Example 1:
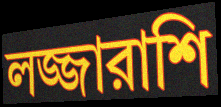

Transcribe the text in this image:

লজ্জারাশি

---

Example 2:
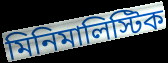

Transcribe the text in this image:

মিনিমালিস্টিক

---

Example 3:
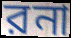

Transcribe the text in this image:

রনা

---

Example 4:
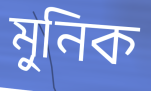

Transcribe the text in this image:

মুনিক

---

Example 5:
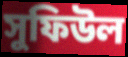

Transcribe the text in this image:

সুফিউল